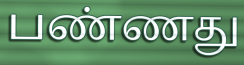
பண்ணது